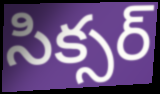
సిక్సర్